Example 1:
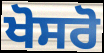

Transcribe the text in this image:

ਖੋਸਰੋ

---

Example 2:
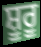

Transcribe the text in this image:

ਸ਼ੂਰੂ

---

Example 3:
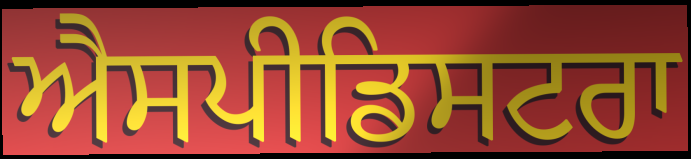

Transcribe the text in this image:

ਐਸਪੀਡਿਸਟਰਾ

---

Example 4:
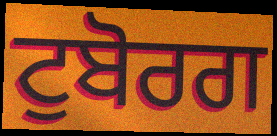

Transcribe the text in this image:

ਟੁਬੋਰਗ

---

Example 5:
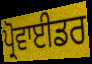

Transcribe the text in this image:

ਪ੍ਰੋਵਾਈਡਰ